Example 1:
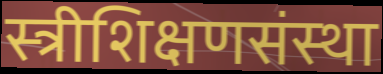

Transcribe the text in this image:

स्त्रीशिक्षणसंस्था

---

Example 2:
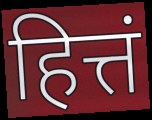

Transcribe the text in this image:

हित्तं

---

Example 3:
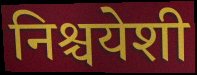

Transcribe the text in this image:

निश्चयेशी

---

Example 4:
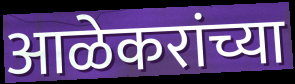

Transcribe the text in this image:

आळेकरांच्या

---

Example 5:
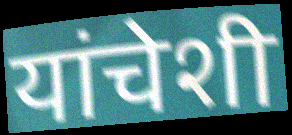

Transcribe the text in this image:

यांचेशी